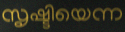
സൃഷ്ടിയെന്ന